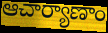
ఆచార్యాణాం